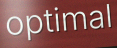
optimal